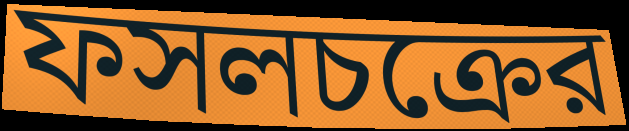
ফসলচক্রের